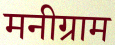
मनीग्राम